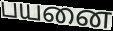
பயனை